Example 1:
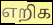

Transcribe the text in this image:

எறிக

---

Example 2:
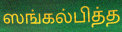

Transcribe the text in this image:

ஸங்கல்பித்த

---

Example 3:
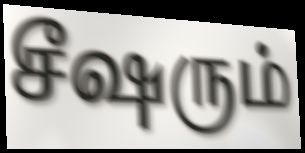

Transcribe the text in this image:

சீஷரும்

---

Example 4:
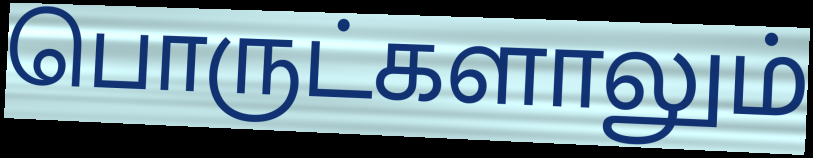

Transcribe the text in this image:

பொருட்களாலும்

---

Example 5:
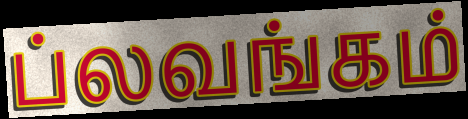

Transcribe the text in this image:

ப்லவங்கம்